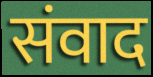
संवाद